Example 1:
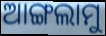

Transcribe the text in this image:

ଆଙ୍ଗଲାମୁ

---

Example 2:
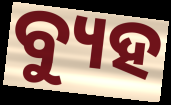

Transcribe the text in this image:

ବ୍ୟୁହ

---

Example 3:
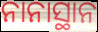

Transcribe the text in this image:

ନାନାସ୍ଥାନ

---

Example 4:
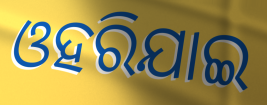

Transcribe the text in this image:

ଓହରିଯାଇ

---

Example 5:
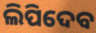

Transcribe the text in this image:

ଲିପିଦେବ